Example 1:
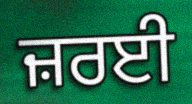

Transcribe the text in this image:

ਜ਼ਰਈ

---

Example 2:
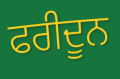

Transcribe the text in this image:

ਫਰੀਦੂਨ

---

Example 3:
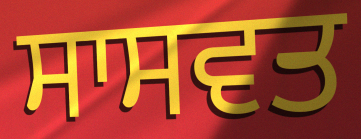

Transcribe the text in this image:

ਸਾਸਵਤ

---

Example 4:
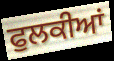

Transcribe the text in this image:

ਫੁਲਕੀਆਂ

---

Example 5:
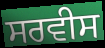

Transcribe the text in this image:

ਸਰਵੀਸ